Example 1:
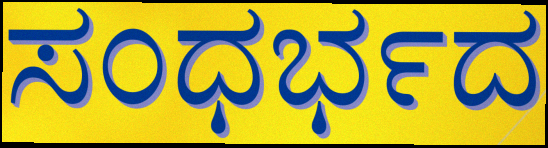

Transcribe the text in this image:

ಸಂಧರ್ಭದ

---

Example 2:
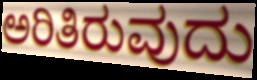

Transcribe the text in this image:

ಅರಿತಿರುವುದು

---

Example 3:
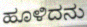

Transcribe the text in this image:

ಹೂಳಿದನು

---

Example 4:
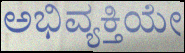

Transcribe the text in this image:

ಅಭಿವ್ಯಕ್ತಿಯೇ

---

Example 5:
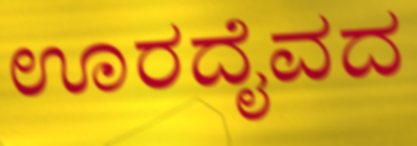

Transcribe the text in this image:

ಊರದೈವದ